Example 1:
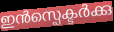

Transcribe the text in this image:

ഇൻസ്പെക്ടർക്കു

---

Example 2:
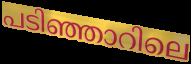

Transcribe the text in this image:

പടിഞ്ഞാറിലെ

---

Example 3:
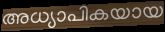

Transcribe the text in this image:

അധ്യാപികയായ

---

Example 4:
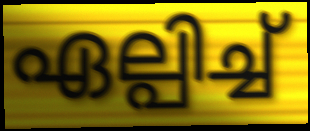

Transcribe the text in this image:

ഏല്പിച്ച്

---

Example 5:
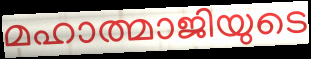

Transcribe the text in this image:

മഹാത്മാജിയുടെ